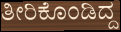
ತೀರಿಕೊಂಡಿದ್ದ